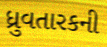
ધ્રુવતારકની